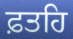
ਫ਼ਤਹਿ